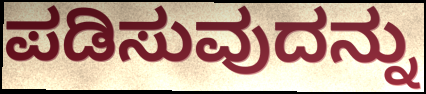
ಪಡಿಸುವುದನ್ನು